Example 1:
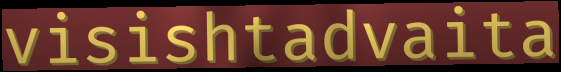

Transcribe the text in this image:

visishtadvaita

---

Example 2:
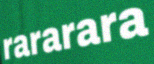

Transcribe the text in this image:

rararara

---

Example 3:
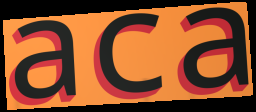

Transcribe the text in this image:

aca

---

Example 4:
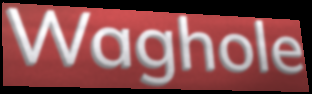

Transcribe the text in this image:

Waghole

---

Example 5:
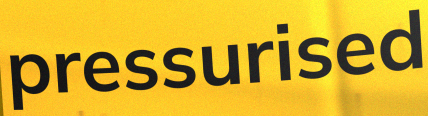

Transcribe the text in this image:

pressurised